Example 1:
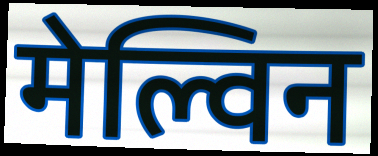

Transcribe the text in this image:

मेल्विन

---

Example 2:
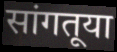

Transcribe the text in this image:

सांगतूया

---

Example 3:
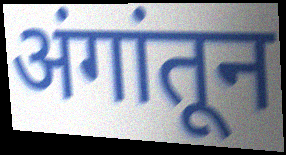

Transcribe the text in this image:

अंगांतून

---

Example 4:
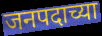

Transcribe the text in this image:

जनपदाच्या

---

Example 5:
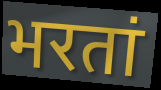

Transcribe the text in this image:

भरतां